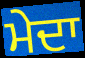
ਮੇਦਾ